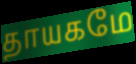
தாயகமே